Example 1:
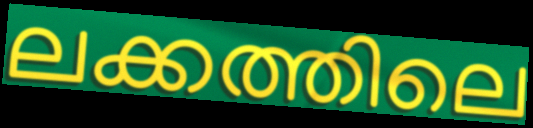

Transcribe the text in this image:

ലക്കത്തിലെ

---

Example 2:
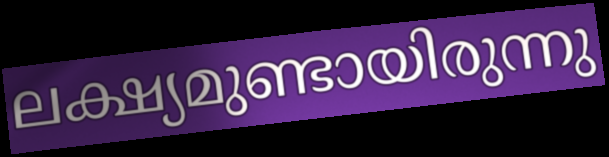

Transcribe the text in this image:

ലക്ഷ്യമുണ്ടായിരുന്നു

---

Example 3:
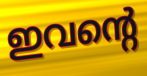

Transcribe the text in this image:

ഇവന്റെ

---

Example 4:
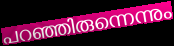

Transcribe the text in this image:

പറഞ്ഞിരുന്നെന്നും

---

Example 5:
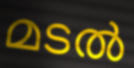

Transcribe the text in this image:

മടൽ